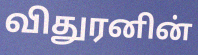
விதுரனின்